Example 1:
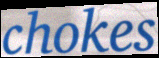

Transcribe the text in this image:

chokes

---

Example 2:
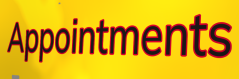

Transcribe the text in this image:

Appointments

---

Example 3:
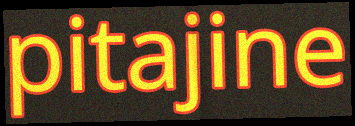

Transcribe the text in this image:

pitajine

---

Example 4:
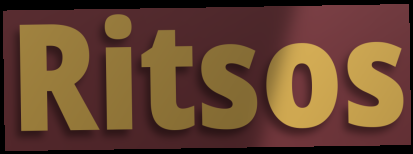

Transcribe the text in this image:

Ritsos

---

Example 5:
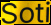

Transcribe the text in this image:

Soti